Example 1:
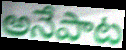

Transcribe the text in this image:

అనేపాట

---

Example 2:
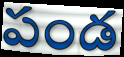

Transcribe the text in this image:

పండ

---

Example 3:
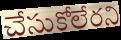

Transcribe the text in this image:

చేసుకోలేరని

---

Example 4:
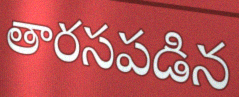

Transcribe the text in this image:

తారసపడిన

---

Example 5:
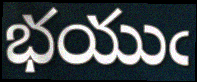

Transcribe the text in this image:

భయుఁ